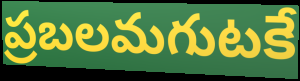
ప్రబలమగుటకే